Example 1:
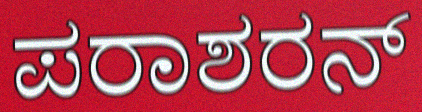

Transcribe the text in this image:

ಪರಾಶರನ್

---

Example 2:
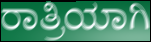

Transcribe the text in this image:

ರಾತ್ರಿಯಾಗಿ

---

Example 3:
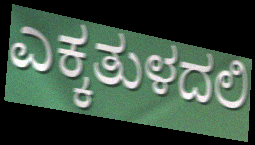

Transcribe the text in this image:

ಎಕ್ಕತುಳದಲಿ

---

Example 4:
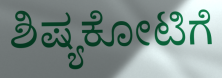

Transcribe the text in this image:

ಶಿಷ್ಯಕೋಟಿಗೆ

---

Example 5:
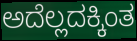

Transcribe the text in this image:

ಅದೆಲ್ಲದಕ್ಕಿಂತ